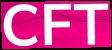
CFT